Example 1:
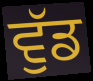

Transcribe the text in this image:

ਵੁੱਡ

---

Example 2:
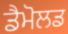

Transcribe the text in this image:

ਡੈਮੋਲਡ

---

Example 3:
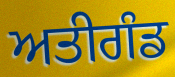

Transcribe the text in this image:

ਅਤੀਗੰਡ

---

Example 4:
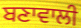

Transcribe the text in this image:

ਬਣਾਵਾਲੀ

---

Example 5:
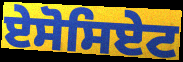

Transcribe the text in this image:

ਏਸੋਸਿਏਟ